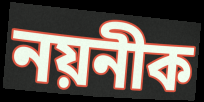
নয়নীক